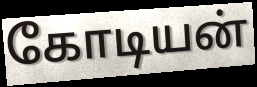
கோடியன்